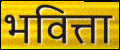
भवित्ता